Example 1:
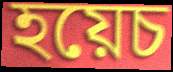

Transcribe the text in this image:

হয়েচ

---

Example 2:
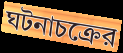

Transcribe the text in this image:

ঘটনাচক্রের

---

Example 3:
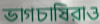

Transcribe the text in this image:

ভাগচাষিরাও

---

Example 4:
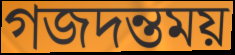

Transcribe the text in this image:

গজদন্তময়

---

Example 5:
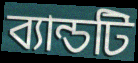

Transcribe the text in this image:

ব্যান্ডটি